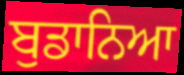
ਬੁਡਾਨਿਆ